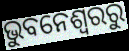
ଭୁବନେଶ୍ୱରରୁ